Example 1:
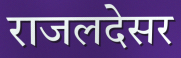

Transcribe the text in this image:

राजलदेसर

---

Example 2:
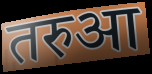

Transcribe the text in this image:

तरुआ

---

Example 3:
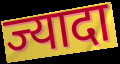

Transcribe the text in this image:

ज्‍यादा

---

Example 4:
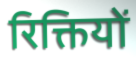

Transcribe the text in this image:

रिक्तियों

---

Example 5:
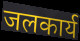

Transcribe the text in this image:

जलकार्य